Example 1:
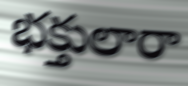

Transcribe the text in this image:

భక్తులారా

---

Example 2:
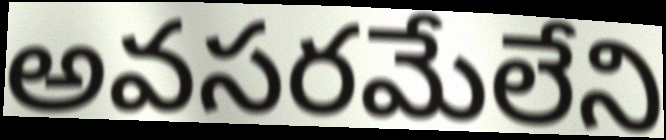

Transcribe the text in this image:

అవసరమేలేని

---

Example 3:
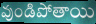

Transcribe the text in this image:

వుండిపోతాయి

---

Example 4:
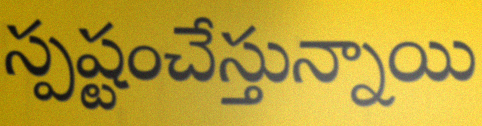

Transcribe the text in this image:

స్పష్టంచేస్తున్నాయి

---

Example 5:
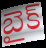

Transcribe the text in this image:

బైక్